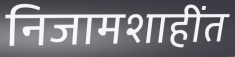
निजामशाहींत